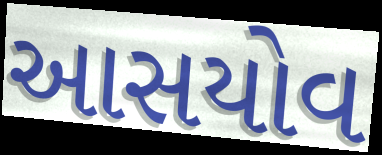
આસયોવ